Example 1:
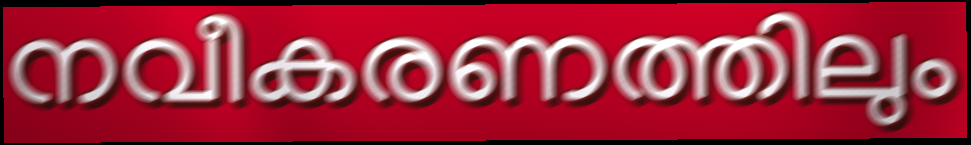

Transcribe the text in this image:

നവീകരണത്തിലും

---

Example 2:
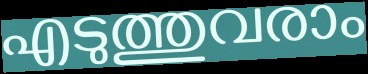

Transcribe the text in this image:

എടുത്തുവരാം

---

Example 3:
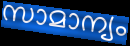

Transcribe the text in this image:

സാമാന്യം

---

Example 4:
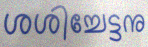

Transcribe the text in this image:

ശശിച്ചേട്ടനു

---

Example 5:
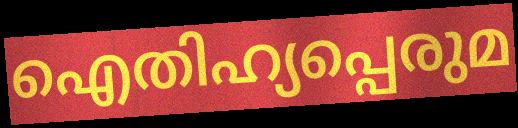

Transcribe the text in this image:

ഐതിഹ്യപ്പെരുമ